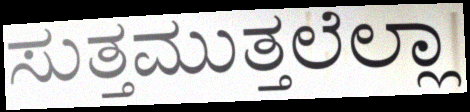
ಸುತ್ತಮುತ್ತಲೆಲ್ಲಾ